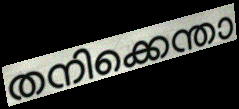
തനിക്കെന്താ